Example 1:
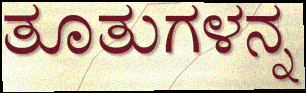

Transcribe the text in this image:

ತೂತುಗಳನ್ನ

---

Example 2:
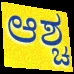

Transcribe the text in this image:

ಆಶ್ಚ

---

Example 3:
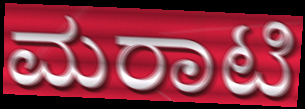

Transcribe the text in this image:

ಮರಾಟಿ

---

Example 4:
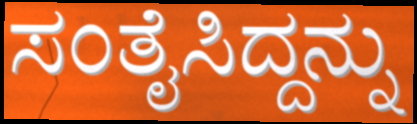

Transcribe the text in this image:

ಸಂತೈಸಿದ್ದನ್ನು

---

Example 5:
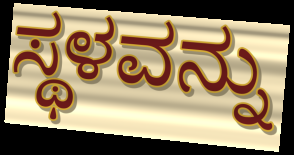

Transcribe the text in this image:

ಸ್ಥಳವನ್ನು